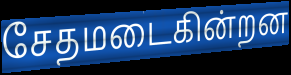
சேதமடைகின்றன